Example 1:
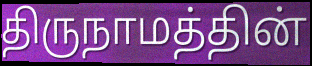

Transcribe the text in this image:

திருநாமத்தின்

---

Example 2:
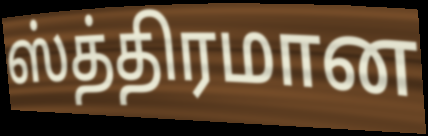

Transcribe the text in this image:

ஸ்த்திரமான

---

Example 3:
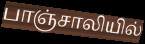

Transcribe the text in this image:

பாஞ்சாலியில்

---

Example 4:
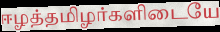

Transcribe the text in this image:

ஈழத்தமிழர்களிடையே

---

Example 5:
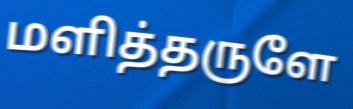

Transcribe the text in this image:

மளித்தருளே